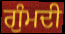
ਗੁੰਮਦੀ